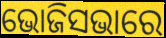
ଭୋଜିସଭାରେ